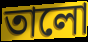
তালো